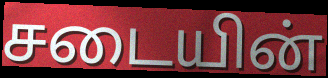
சடையின்